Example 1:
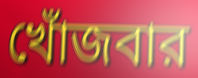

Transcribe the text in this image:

খোঁজবার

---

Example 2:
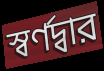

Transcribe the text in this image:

স্বর্ণদ্বার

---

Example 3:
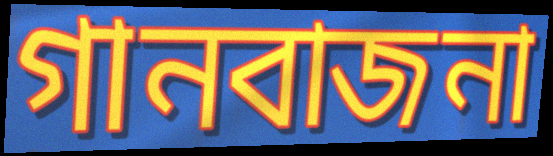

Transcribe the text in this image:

গানবাজনা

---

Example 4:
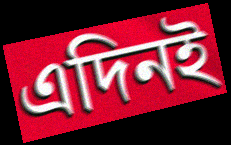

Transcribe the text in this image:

এদিনই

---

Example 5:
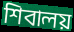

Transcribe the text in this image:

শিবালয়